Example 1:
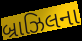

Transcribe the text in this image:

બ્રાઝિલના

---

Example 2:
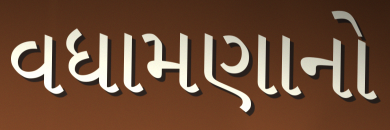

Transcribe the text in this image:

વધામણાનો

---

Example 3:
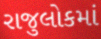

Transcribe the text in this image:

રાજુલોકમાં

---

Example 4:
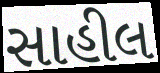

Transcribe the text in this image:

સાહીલ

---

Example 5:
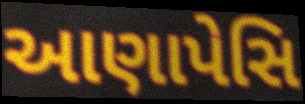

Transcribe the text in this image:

આણાપેસિ